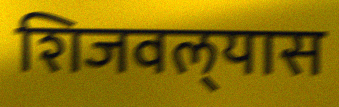
शिजवल्यास